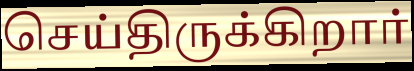
செய்திருக்கிறார்